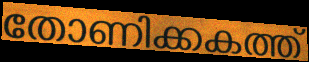
തോണിക്കകത്ത്